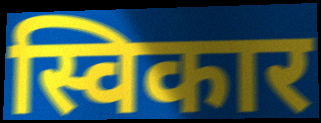
स्विकार